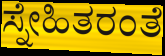
ಸ್ನೇಹಿತರಂತೆ